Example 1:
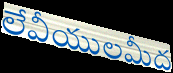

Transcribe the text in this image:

లేవీయులమీద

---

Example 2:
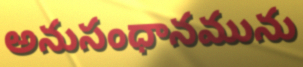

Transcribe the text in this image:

అనుసంధానమును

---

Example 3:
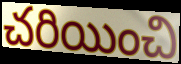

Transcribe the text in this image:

చరియించి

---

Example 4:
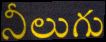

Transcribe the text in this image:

నీలుగు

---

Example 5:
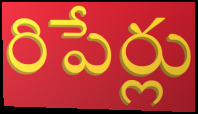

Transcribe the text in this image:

రిపేర్లు